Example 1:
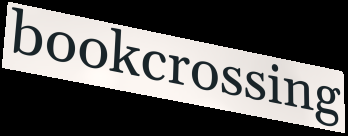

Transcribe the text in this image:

bookcrossing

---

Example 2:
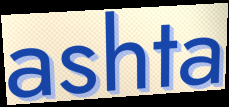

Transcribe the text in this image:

ashta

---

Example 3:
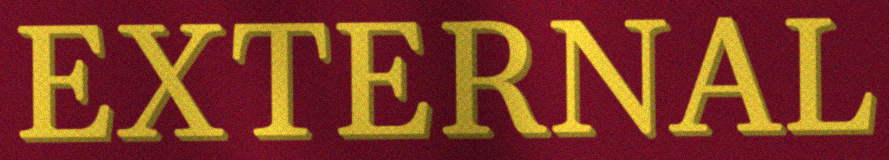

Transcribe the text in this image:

EXTERNAL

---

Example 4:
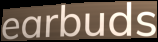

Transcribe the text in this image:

earbuds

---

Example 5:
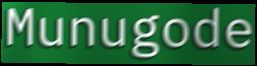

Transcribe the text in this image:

Munugode